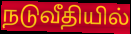
நடுவீதியில்